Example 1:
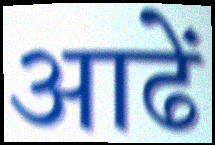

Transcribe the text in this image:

आढें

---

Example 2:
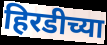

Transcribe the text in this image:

हिरडीच्या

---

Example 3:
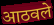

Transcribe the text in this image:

आठवले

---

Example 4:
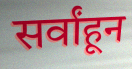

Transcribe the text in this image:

सर्वांहून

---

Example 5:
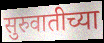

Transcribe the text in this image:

सुरुवातीच्या